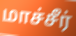
மாச்சீர்